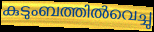
കുടുംബത്തിൽവെച്ചു